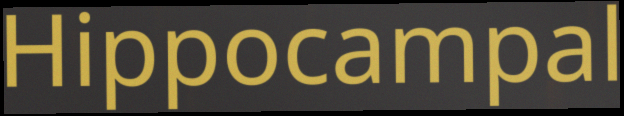
Hippocampal